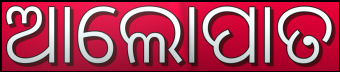
ଆଲୋପାତ